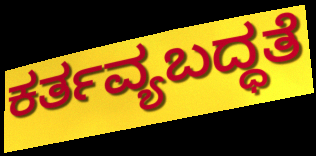
ಕರ್ತವ್ಯಬದ್ಧತೆ